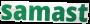
samast